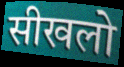
सीखलो